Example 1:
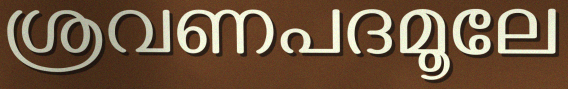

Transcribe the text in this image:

ശ്രവണപദമൂലേ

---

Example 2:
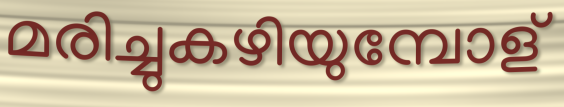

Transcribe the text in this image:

മരിച്ചുകഴിയുമ്പോള്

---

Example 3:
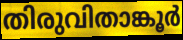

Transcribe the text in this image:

തിരുവിതാങ്കൂർ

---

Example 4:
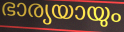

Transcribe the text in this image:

ഭാര്യയായും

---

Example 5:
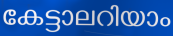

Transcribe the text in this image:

കേട്ടാലറിയാം